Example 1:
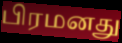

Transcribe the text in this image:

பிரமனது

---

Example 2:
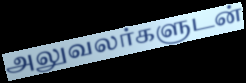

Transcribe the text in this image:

அலுவலர்களுடன்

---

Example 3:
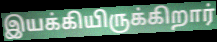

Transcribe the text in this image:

இயக்கியிருக்கிறார்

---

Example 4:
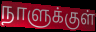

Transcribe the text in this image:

நாளுக்குள்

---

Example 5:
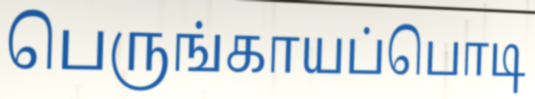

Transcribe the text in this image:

பெருங்காயப்பொடி